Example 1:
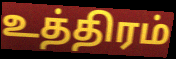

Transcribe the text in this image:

உத்திரம்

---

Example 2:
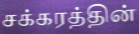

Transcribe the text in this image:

சக்கரத்தின்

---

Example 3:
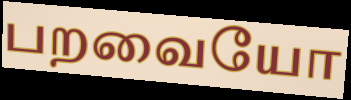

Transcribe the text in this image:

பறவையோ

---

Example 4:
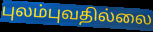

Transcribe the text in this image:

புலம்புவதில்லை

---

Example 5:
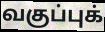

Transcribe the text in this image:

வகுப்புக்